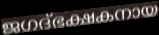
ജഗദ്ഭക്ഷകനായ